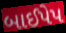
બાઈપેપ